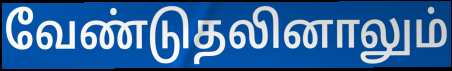
வேண்டுதலினாலும்